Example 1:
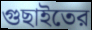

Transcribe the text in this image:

গুছাইতের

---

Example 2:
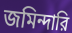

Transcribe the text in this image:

জমিন্দারি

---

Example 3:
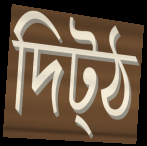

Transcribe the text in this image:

দিট্ঠ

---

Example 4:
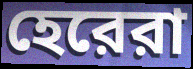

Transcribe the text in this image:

হেরেরা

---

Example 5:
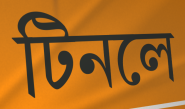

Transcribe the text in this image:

টিনলে